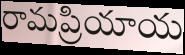
రామప్రియాయ